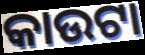
କାଉଟା